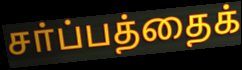
சர்ப்பத்தைக்